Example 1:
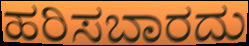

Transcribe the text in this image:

ಹರಿಸಬಾರದು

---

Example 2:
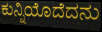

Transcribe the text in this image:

ಕುನ್ನಿಯೊದೆದನು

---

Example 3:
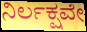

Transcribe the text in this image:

ನಿರ್ಲಕ್ಷವೇ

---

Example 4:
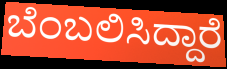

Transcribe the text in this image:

ಬೆಂಬಲಿಸಿದ್ದಾರೆ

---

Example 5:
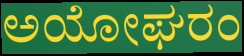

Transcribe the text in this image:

ಅಯೋಘರಂ